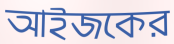
আইজকের